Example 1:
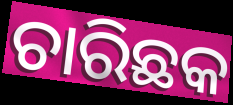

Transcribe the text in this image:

ଚାରିଛକ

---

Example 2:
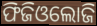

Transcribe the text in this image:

ଫିଜିଓଲୋଜି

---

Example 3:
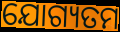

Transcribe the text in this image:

ଯୋଗ୍ୟତମ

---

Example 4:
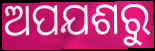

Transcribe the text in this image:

ଅପଯଶରୁ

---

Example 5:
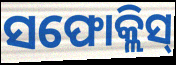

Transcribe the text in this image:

ସଫୋକ୍ଲିସ୍